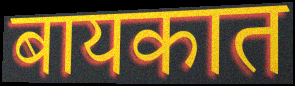
बायकात